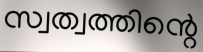
സ്വത്വത്തിന്റെ